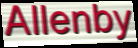
Allenby